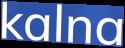
kalna